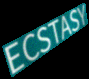
ECSTASY